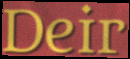
Deir